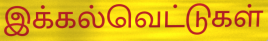
இக்கல்வெட்டுகள்